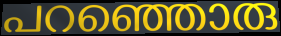
പറഞ്ഞൊരു